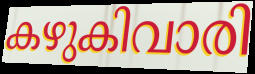
കഴുകിവാരി